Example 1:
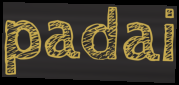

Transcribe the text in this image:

padai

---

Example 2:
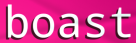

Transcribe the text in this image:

boast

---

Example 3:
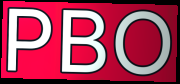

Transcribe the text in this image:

PBO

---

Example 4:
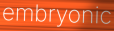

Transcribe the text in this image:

embryonic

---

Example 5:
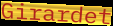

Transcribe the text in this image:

Girardet